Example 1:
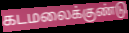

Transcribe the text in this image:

கடமலைக்குண்டு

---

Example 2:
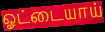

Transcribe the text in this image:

ஓட்டையாய்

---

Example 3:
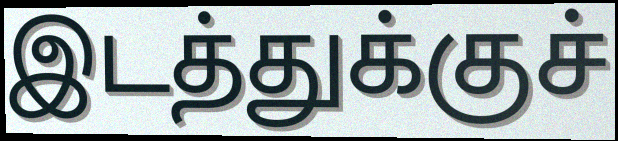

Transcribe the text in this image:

இடத்துக்குச்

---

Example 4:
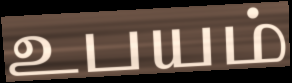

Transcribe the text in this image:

உபயம்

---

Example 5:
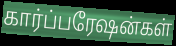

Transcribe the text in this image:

கார்ப்பரேஷன்கள்